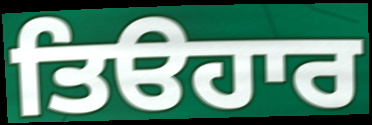
ਤਿੳਹਾਰ